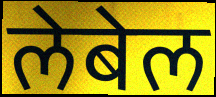
लेबेल